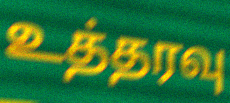
உத்தரவு